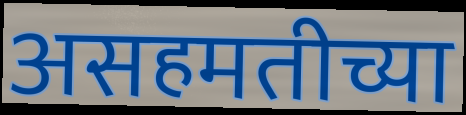
असहमतीच्या